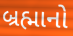
બ્રહ્માનો